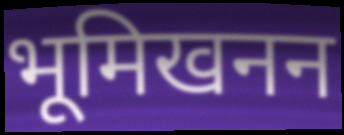
भूमिखनन